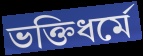
ভক্তিধর্মে